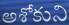
అశోకుని